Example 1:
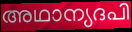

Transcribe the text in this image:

അഥാന്യദപി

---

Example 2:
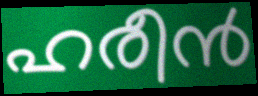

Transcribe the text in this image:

ഹരീൻ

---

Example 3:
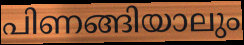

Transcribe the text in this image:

പിണങ്ങിയാലും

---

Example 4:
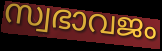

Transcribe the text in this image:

സ്വഭാവജം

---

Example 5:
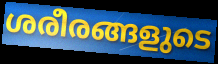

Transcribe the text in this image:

ശരീരങ്ങളുടെ